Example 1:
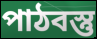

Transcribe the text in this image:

পাঠবস্তু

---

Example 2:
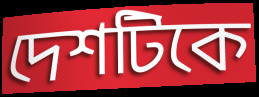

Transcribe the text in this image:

দেশটিকে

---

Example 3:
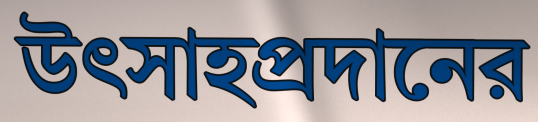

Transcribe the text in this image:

উৎসাহপ্রদানের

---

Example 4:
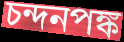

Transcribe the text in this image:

চন্দনপঙ্ক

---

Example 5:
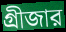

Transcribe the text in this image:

গ্রীজার